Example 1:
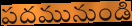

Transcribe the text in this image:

పదమునుండి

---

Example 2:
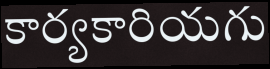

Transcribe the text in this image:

కార్యకారియగు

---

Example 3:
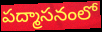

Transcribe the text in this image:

పద్మాసనంలో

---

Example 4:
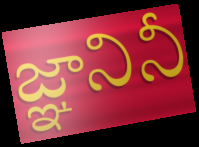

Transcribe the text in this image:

జ్ఞానినీ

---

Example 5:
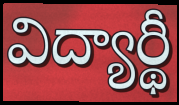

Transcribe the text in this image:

విద్యార్థీ